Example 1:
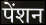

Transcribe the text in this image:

पेंशन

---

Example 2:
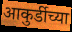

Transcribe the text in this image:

आकुर्डीच्या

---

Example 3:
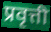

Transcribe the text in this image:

प्रवृत्ती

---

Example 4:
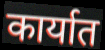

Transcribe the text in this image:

कार्यात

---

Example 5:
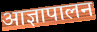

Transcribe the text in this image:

आज्ञापालन